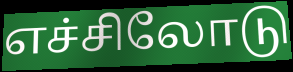
எச்சிலோடு